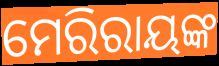
ମେରିରାୟଙ୍କ